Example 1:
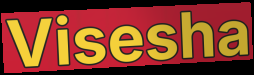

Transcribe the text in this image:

Visesha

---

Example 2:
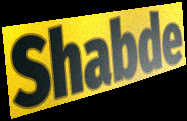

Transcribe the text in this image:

Shabde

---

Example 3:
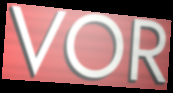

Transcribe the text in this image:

VOR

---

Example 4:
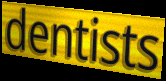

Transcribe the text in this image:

dentists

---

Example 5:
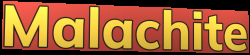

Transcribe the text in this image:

Malachite